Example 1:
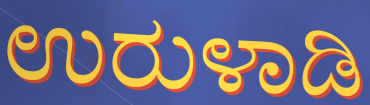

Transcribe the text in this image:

ಉರುಳಾಡಿ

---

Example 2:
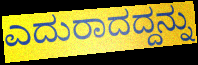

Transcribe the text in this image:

ಎದುರಾದದ್ದನ್ನು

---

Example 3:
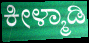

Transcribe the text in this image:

ಕೀಳ್ಮಾಡಿ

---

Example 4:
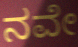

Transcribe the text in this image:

ನವೇ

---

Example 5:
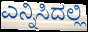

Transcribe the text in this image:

ಎನ್ನಿಸಿದಲ್ಲಿ